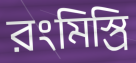
রংমিস্ত্রি